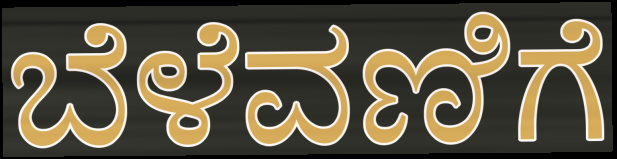
ಬೆಳೆವಣಿಗೆ